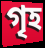
গৃহ